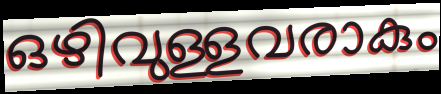
ഒഴിവുള്ളവരാകും